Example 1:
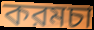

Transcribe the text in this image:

করমচা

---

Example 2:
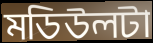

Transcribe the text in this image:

মডিউলটা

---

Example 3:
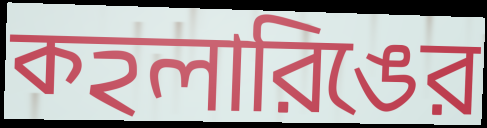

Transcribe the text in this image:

ক্হলারিঙের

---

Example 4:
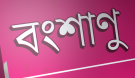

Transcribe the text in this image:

বংশাণু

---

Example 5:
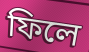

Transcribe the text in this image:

ফিলে